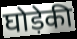
घोड़ेकी